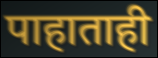
पाहाताही